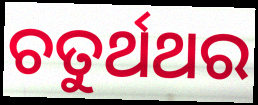
ଚତୁର୍ଥଥର